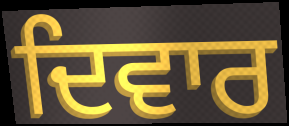
ਦਿਵਾਰ